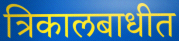
त्रिकालबाधीत